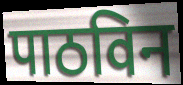
पाठविन